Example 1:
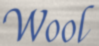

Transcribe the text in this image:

Wool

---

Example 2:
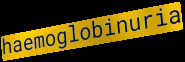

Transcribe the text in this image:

haemoglobinuria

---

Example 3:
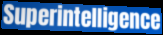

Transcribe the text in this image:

Superintelligence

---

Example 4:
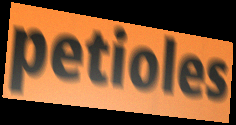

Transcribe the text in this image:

petioles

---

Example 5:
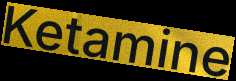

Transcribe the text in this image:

Ketamine